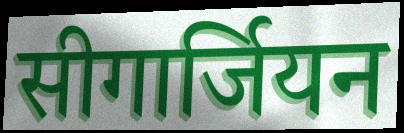
सीगार्जियन